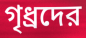
গৃধ্রদের